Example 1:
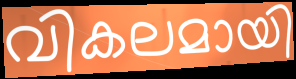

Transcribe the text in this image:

വികലമായി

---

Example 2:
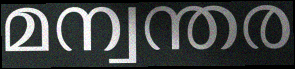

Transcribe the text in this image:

മന്വന്തര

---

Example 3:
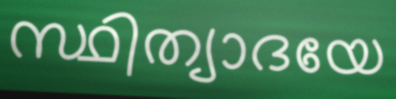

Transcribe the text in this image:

സ്ഥിത്യാദയേ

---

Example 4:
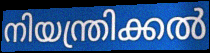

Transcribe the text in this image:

നിയന്ത്രിക്കൽ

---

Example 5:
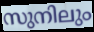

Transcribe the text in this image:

സുനിലും